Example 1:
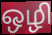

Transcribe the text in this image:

ஒழி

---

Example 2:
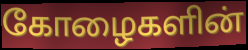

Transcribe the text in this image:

கோழைகளின்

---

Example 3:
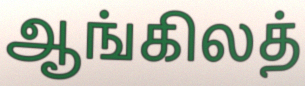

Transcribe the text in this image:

ஆங்கிலத்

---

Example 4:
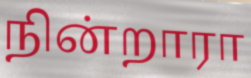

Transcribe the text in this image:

நின்றாரா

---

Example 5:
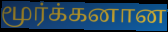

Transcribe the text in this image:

மூர்க்கனான